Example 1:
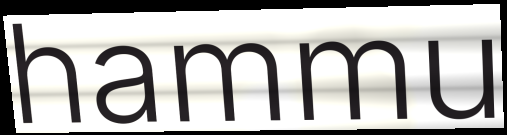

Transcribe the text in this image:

hammu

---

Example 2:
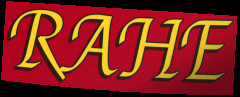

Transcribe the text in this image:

RAHE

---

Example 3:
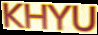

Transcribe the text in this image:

KHYU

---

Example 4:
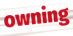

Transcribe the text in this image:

owning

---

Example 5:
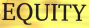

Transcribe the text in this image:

EQUITY